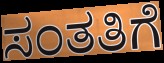
ಸಂತತಿಗೆ